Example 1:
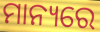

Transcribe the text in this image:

ମାନ୍ୟରେ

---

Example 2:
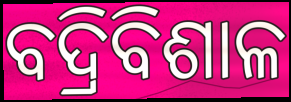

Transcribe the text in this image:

ବଦ୍ରିବିଶାଳ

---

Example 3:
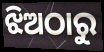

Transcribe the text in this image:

ଝିଅଠାରୁ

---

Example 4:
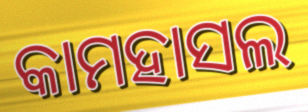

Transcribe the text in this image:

କାମହାସଲ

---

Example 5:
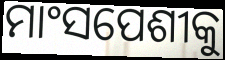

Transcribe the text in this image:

ମାଂସପେଶୀକୁ